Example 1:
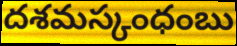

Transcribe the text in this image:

దశమస్కంధంబు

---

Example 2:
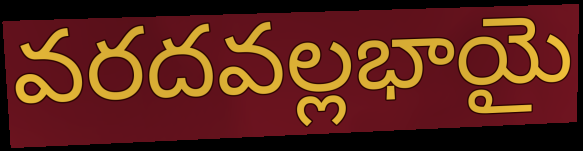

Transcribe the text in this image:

వరదవల్లభాయై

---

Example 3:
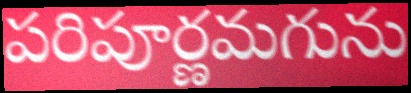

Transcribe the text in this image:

పరిపూర్ణమగును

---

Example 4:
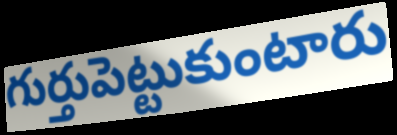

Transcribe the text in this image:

గుర్తుపెట్టుకుంటారు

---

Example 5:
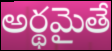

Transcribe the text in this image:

అర్థమైతే